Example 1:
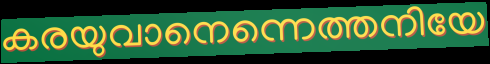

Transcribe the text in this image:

കരയുവാനെന്നെത്തനിയേ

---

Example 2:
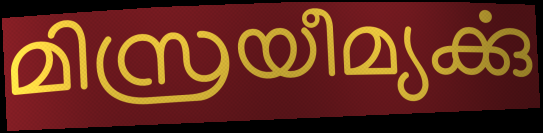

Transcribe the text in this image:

മിസ്രയീമ്യൎക്കു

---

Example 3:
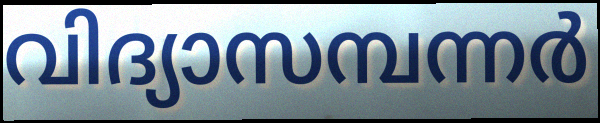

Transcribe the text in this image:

വിദ്യാസമ്പന്നർ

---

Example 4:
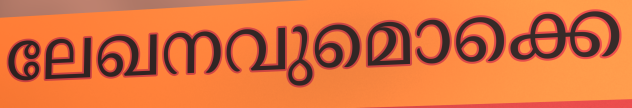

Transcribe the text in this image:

ലേഖനവുമൊക്കെ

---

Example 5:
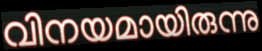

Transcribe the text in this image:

വിനയമായിരുന്നു